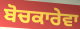
ਬੋਚਕਾਰੇਵਾ